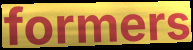
formers